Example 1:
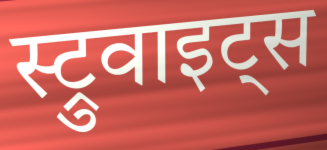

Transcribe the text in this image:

स्ट्रुवाइट्स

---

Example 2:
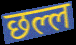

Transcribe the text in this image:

छल्ल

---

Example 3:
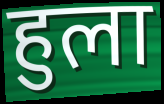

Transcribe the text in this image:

हुला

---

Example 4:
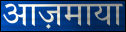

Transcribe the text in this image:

आज़माया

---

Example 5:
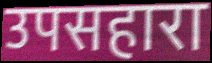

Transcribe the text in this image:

उपसहारा